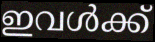
ഇവൾക്ക്